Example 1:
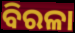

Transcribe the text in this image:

ବିରଳା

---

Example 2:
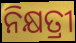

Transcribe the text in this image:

ନିକ୍ଷତ୍ରୀ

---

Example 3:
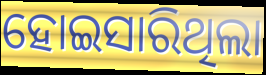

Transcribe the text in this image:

ହୋଇସାରିଥିଲା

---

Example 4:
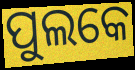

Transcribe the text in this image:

ପୁଲକେ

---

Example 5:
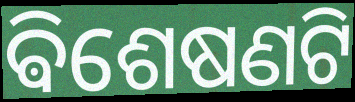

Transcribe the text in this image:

ଵିଶେଷଣଟି